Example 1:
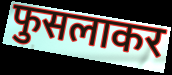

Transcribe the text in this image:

फुसलाकर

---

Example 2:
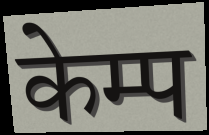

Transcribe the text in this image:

केम्प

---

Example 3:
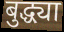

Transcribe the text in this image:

बुद्ध्या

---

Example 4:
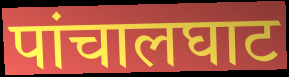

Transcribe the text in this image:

पांचालघाट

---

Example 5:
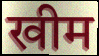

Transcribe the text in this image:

खीम